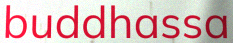
buddhassa